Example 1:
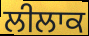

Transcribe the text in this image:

ਲੀਲਾਕ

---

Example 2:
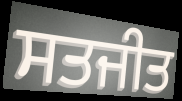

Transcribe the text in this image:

ਸਤਜੀਤ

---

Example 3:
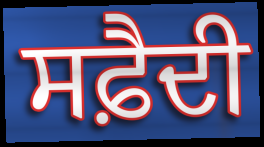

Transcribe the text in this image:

ਸਫ਼ੈਦੀ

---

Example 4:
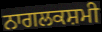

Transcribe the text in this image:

ਨਾਗਲਕਸ਼ਮੀ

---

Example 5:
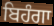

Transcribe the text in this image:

ਬਿਹੰਗਾ